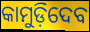
କାମୁଡ଼ିଦେବ